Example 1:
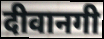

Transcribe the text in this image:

दीवानगी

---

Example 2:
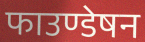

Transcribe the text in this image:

फाउण्डेषन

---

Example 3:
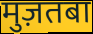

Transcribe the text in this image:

मुज़तबा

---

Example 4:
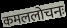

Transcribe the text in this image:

कमललोचनः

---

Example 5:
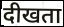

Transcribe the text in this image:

दीखता